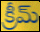
క్రీమ్